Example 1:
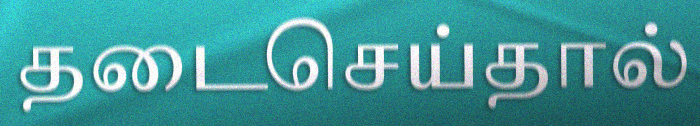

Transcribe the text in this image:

தடைசெய்தால்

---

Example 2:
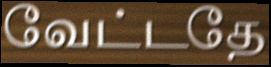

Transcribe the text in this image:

வேட்டதே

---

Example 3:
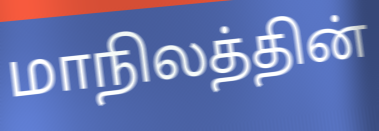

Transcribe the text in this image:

மாநிலத்தின்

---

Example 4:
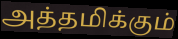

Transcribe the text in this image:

அத்தமிக்கும்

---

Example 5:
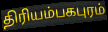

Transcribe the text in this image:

திரியம்பகபுரம்